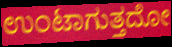
ಉಂಟಾಗುತ್ತದೋ